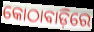
କୋଠାବାଡ଼ିରେ